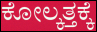
ಕೋಲ್ಕತ್ತಕ್ಕೆ